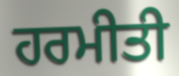
ਹਰਮੀਤੀ